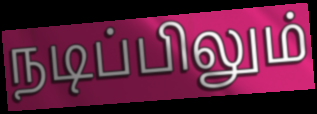
நடிப்பிலும்